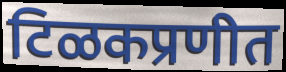
टिळकप्रणीत